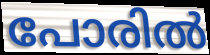
പോരിൽ